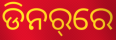
ଡିନର୍‌ରେ